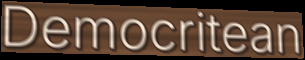
Democritean